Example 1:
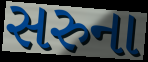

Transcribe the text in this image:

સરુના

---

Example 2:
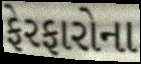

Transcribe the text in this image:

ફેરફારોના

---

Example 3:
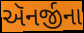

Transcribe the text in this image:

ઍનર્જીના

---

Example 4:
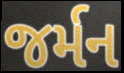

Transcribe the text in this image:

જર્મન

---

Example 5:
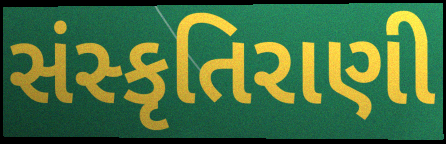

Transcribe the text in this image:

સંસ્કૃતિરાણી